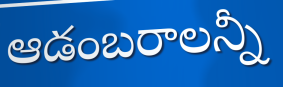
ఆడంబరాలన్నీ